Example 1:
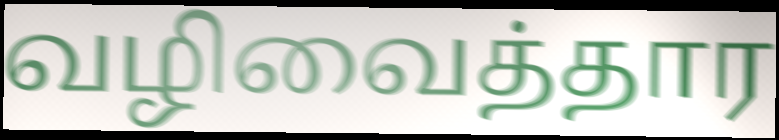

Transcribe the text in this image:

வழிவைத்தார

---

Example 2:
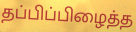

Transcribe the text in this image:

தப்பிப்பிழைத்த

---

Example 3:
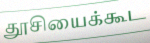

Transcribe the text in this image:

தூசியைக்கூட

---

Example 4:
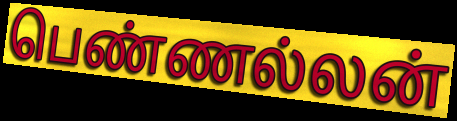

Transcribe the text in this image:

பெண்ணல்லன்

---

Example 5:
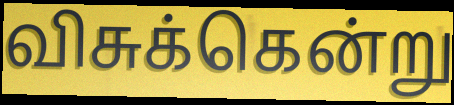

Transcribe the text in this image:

விசுக்கென்று